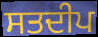
ਸਤਦੀਪ